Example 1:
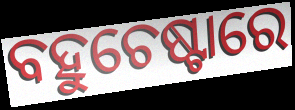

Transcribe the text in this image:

ବହୁଚେଷ୍ଟାରେ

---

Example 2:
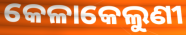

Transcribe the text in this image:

କେଳାକେଲୁଣୀ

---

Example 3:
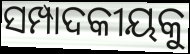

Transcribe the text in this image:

ସମ୍ପାଦକୀୟକୁ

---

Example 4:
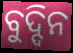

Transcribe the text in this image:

ବୁଦ୍ଦିନ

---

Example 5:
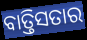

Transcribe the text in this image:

ବାତ୍ତିସତାର